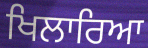
ਖਿਲਾਰਿਆ